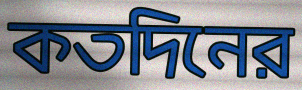
কতদিনের